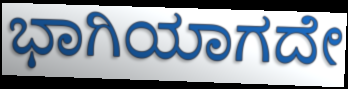
ಭಾಗಿಯಾಗದೇ